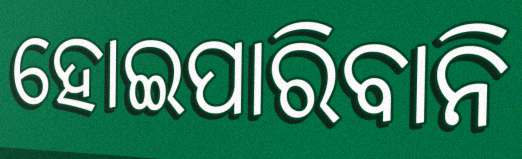
ହୋଇପାରିବାନି